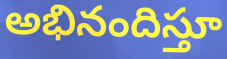
అభినందిస్తూ